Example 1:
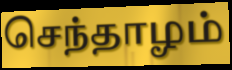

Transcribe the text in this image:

செந்தாழம்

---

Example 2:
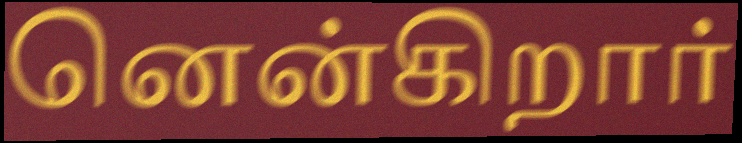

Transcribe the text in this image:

னென்கிறார்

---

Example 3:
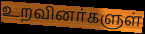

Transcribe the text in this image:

உறவினர்களுள்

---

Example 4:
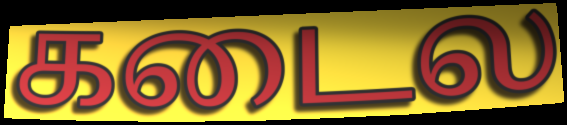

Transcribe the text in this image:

கடைல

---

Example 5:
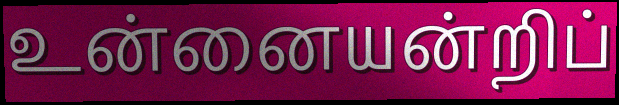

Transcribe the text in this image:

உன்னையன்றிப்